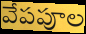
వేపపూల